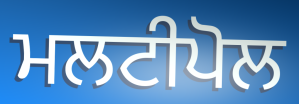
ਮਲਟੀਪੋਲ